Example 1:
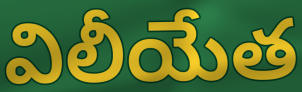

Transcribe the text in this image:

విలీయేత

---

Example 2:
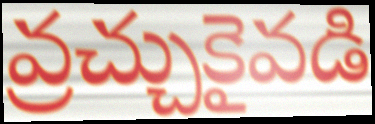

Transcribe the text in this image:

వ్రచ్చుకైవడి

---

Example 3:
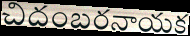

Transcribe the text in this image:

చిదంబరనాయక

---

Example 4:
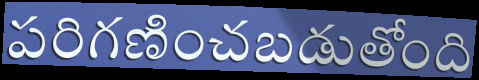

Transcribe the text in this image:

పరిగణించబడుతోంది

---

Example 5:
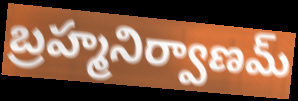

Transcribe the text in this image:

బ్రహ్మనిర్వాణమ్